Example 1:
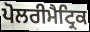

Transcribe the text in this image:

ਪੋਲਰੀਮੈਟ੍ਰਿਕ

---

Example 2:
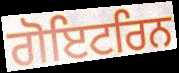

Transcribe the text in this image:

ਗੋਇਟਰਿਨ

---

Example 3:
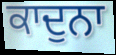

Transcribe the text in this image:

ਕਾਦੁਨਾ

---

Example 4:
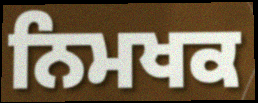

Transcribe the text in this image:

ਨਿਮਖਕ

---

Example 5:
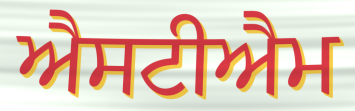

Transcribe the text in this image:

ਐਸਟੀਐਮ